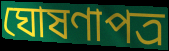
ঘোষণাপত্র